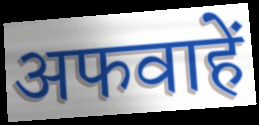
अफवाहें